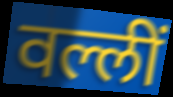
वल्लीं